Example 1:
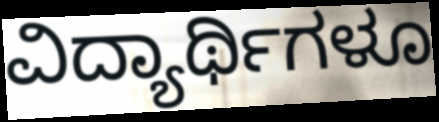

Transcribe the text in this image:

ವಿದ್ಯಾರ್ಥಿಗಳೂ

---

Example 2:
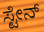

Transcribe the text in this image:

ಸ್ಟೇನ್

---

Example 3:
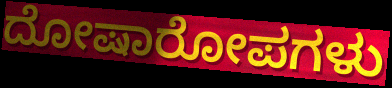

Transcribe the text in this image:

ದೋಷಾರೋಪಗಳು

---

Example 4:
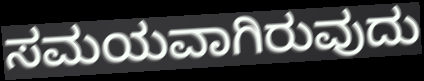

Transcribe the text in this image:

ಸಮಯವಾಗಿರುವುದು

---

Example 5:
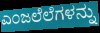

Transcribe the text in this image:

ಎಂಜಲೆಲೆಗಳನ್ನು